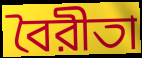
বৈরীতা